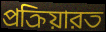
প্রক্রিয়ারত